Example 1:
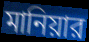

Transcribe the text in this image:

মানিয়ার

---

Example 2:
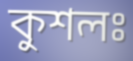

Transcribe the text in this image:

কুশলঃ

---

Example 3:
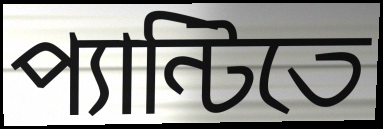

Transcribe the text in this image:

প্যান্টিতে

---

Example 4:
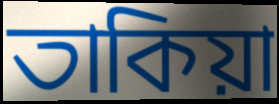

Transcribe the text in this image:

তাকিয়া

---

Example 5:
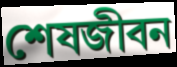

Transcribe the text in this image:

শেষজীবন